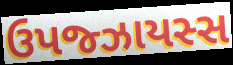
ઉપજ્ઝાયસ્સ